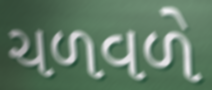
ચળવળે